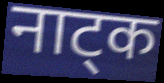
नाट्क